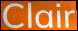
Clair